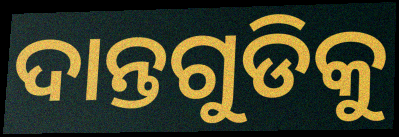
ଦାନ୍ତଗୁଡିକୁ